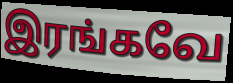
இரங்கவே